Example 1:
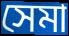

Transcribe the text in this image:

সেমা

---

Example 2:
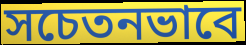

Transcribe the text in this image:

সচেতনভাবে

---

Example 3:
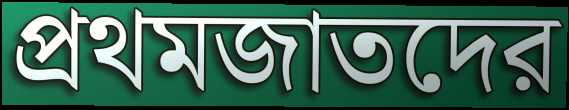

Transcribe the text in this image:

প্রথমজাতদের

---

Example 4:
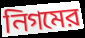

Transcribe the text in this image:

নিগমের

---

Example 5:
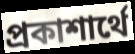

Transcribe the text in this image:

প্রকাশার্থে